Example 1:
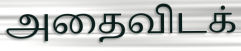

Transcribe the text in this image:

அதைவிடக்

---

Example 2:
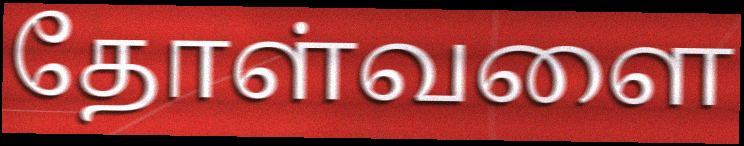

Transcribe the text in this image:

தோள்வளை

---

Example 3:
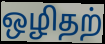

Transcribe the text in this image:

ஒழிதற்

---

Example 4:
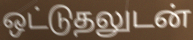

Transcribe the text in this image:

ஒட்டுதலுடன்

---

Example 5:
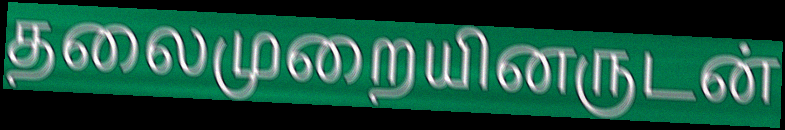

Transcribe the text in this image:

தலைமுறையினருடன்